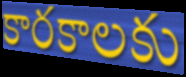
కారకాలకు